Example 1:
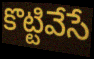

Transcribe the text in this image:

కొట్టివేసే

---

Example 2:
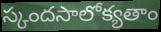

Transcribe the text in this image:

స్కందసాలోక్యతాం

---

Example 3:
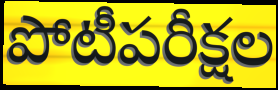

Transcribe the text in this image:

పోటీపరీక్షల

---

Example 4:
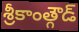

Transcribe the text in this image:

శ్రీకాంత్గౌడ్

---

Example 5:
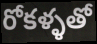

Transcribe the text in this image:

రోకళ్ళతో